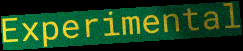
Experimental